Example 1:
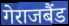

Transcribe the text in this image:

गेराजबैंड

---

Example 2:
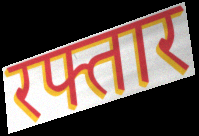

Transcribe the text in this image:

रफ्तार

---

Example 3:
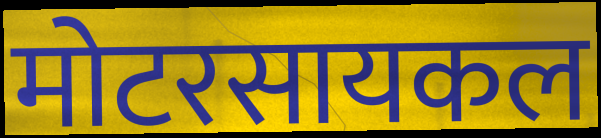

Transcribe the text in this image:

मोटरसायकल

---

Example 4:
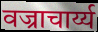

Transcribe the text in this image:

वज्राचार्य्य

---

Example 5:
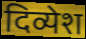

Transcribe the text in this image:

दिव्येश